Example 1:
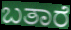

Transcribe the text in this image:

ಬತಾರೆ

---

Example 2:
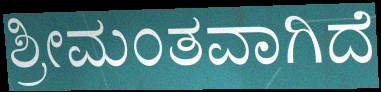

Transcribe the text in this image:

ಶ್ರೀಮಂತವಾಗಿದೆ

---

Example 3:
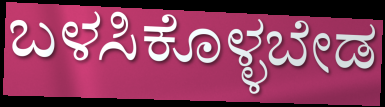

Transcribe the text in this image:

ಬಳಸಿಕೊಳ್ಳಬೇಡ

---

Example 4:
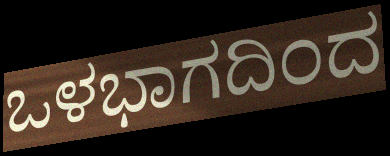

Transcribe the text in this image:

ಒಳಭಾಗದಿಂದ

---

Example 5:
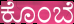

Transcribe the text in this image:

ಕೊಂಬೆ